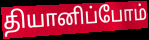
தியானிப்போம்